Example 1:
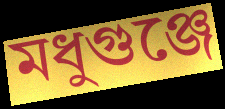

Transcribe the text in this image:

মধুগুঞ্জে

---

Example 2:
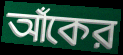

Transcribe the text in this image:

আঁকের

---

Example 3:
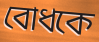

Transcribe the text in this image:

বোধকে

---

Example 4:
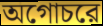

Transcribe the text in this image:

অগোচরে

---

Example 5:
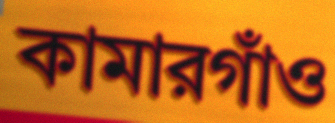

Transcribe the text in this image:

কামারগাঁও